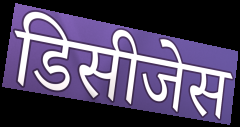
डिसीजेस